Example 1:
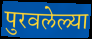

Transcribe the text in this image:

पुरवलेल्या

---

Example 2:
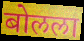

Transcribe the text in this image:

बोलला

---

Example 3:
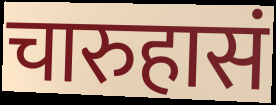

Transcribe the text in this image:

चारुहासं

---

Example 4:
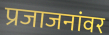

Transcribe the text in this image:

प्रजाजनांवर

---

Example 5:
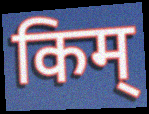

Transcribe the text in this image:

किम्